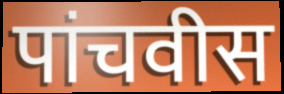
पांचवीस